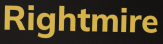
Rightmire